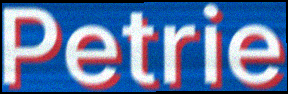
Petrie